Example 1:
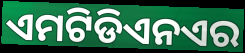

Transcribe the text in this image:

ଏମଟିଡିଏନଏର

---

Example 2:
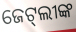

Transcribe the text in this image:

ଜେଟ୍‌ଲୀଙ୍କ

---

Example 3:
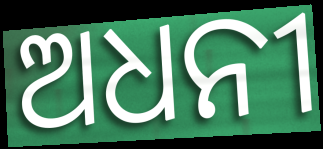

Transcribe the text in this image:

ଅଧନୀ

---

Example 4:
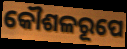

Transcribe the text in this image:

କୌଶଳରୂପେ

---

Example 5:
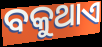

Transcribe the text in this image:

ବକୁଥାଏ